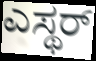
ಎಸ್ಥರ್